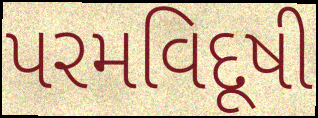
પરમવિદૂષી